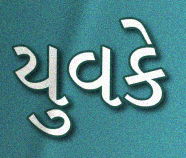
યુવકે